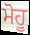
ਮੋਹੂ